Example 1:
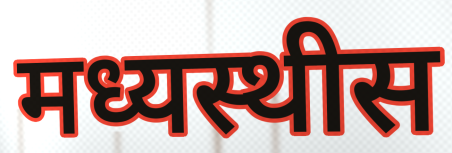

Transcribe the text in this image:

मध्यस्थीस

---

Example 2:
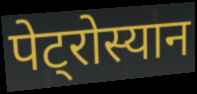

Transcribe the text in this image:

पेट्रोस्यान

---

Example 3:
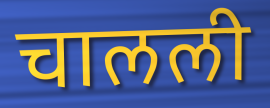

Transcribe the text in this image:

चालली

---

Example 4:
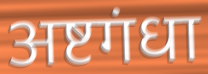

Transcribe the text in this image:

अष्टगंधा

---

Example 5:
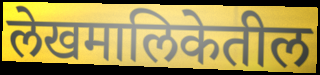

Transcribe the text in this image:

लेखमालिकेतील